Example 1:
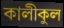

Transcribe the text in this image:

কালীকুল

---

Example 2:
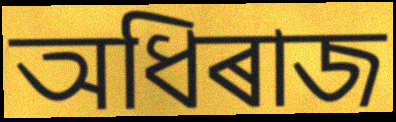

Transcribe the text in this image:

অধিৰাজ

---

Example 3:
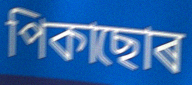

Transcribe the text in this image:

পিকাছোৰ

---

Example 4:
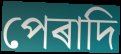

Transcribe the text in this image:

পেৰাদি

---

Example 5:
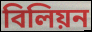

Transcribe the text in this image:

বিলিয়ন